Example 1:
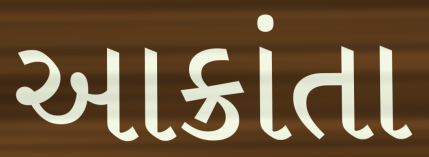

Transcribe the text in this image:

આક્રાંતા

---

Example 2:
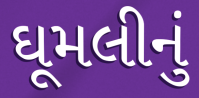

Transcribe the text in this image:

ઘૂમલીનું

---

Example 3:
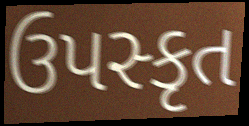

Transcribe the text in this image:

ઉપસ્કૃત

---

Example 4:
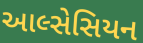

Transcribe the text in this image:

આલ્સેસિયન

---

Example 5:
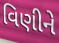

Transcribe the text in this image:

વિણીને